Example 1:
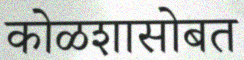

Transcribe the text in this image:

कोळशासोबत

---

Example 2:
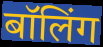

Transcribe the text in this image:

बॉलिंग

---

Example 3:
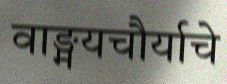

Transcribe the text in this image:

वाङ्मयचौर्याचे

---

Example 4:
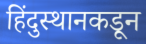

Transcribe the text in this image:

हिंदुस्थानकडून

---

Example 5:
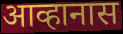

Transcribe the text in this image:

आव्हानास